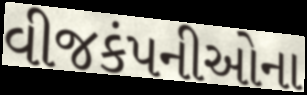
વીજકંપનીઓના